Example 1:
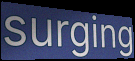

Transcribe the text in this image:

surging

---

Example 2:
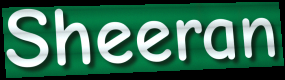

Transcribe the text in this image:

Sheeran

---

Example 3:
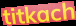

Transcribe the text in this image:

titkach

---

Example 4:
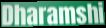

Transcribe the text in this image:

Dharamshi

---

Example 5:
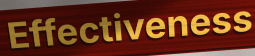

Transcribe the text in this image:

Effectiveness